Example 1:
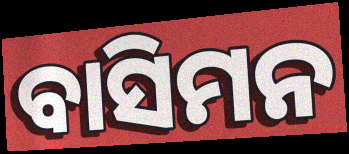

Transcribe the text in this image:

ବାସିମନ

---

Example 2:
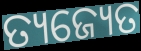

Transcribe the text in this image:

ତ୍ୟଜ୍ୟେତ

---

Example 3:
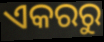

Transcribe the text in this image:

ଏକରରୁ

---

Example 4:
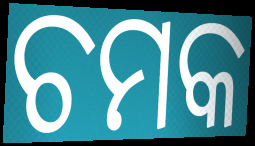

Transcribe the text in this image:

ଚମକ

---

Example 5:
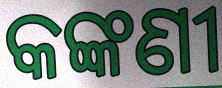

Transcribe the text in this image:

କଙ୍କଣୀ